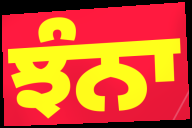
ਝੰਨਾ